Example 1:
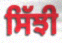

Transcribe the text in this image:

ਸਿੱਝੀ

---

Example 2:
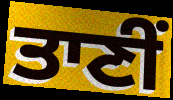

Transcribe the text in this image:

ਤਾਣੀਂ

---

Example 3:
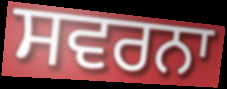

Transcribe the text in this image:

ਸਵਰਨਾ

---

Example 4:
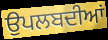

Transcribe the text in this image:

ਉਪਲਬਦੀਆਂ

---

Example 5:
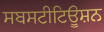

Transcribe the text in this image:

ਸਬਸਟੀਟਿਊਸ਼ਨ